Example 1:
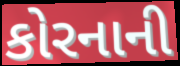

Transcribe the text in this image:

કોરનાની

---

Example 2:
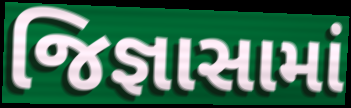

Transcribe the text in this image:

જિજ્ઞાસામાં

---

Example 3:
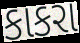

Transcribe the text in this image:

કાકરા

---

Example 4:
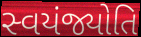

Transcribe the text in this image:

સ્વયંજ્યોતિ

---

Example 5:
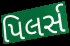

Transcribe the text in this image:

પિલર્સ